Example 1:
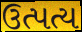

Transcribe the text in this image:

ઉત્પત્ય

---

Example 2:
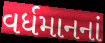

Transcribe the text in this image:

વર્ધમાનનાં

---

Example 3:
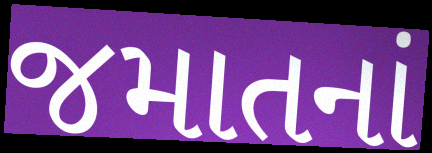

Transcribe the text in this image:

જમાતનાં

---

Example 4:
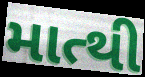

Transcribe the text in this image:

માત્થી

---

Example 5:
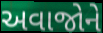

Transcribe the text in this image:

અવાજોને